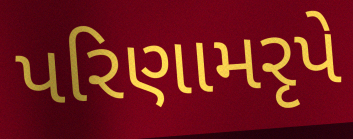
પરિણામરૃપે